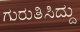
ಗುರುತಿಸಿದ್ದು